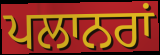
ਪਲਾਨਰਾਂ